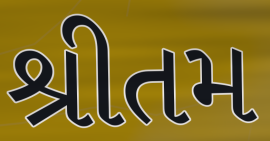
શ્રીતમ